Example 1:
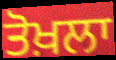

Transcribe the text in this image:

ਤੋਖ਼ਲਾ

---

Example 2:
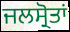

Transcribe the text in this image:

ਜਲਸ੍ਰੋਤਾਂ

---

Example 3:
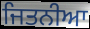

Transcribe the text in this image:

ਜਿਤਨੀਆ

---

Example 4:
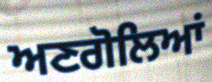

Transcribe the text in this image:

ਅਣਗੋਲਿਆਂ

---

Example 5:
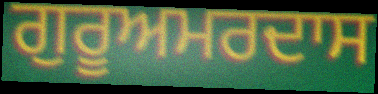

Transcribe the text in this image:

ਗੁਰੂਅਮਰਦਾਸ